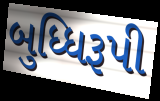
બુધ્ધિરૂપી